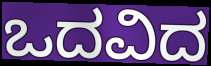
ಒದವಿದ